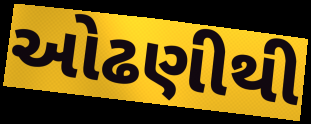
ઓઢણીથી